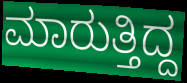
ಮಾರುತ್ತಿದ್ದ